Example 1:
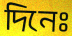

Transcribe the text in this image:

দিনেঃ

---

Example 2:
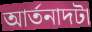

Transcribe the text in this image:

আর্তনাদটা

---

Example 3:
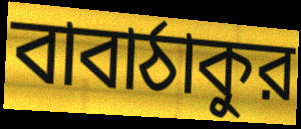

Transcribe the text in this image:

বাবাঠাকুর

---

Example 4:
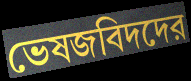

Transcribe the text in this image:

ভেষজবিদদের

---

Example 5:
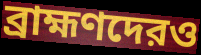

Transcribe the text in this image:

ব্রাহ্মণদেরও